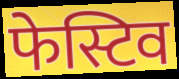
फेस्टिव